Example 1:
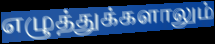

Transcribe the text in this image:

எழுத்துக்களாலும்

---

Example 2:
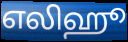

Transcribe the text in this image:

எலிஹூ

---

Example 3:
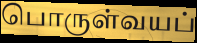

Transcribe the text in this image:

பொருள்வயப்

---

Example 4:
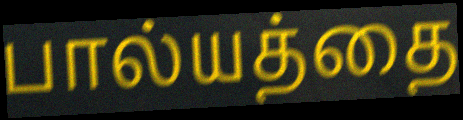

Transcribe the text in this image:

பால்யத்தை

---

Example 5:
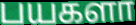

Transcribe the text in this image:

பயகளா